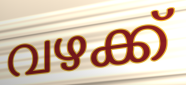
വഴക്ക്